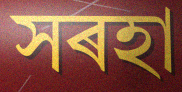
সৰহা